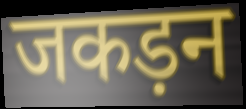
जकड़न